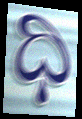
ಧಿ